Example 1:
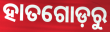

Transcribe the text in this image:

ହାତଗୋଡ଼ରୁ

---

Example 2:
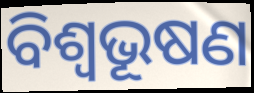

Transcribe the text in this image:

ବିଶ୍ୱଭୂଷଣ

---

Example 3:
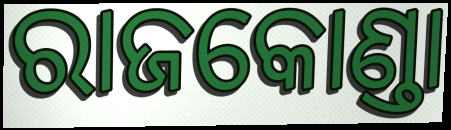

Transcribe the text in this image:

ରାଜକୋଣ୍ଡା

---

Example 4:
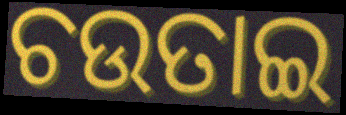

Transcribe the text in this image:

ଚଉତାଇ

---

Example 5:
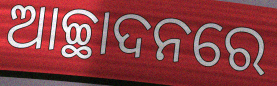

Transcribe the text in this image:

ଆଚ୍ଛାଦନରେ